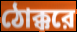
ঠোক্করে